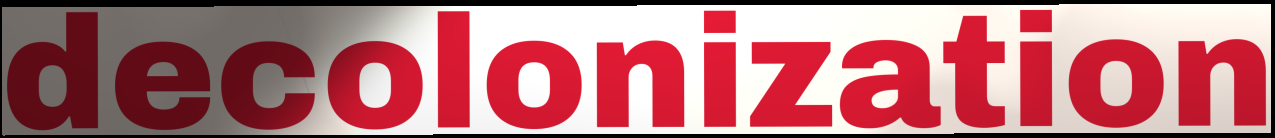
decolonization